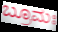
ಬ್ರೂಮಃ